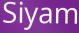
Siyam